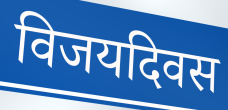
विजयदिवस